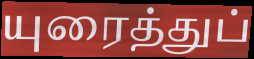
யுரைத்துப்